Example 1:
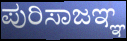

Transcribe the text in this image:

ಪುರಿಸಾಜಞ್ಞ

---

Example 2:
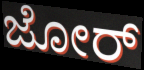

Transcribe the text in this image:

ಜೋರ್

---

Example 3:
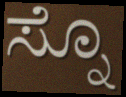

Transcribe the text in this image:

ಸ್ನೊ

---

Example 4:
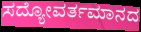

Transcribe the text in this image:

ಸದ್ಯೋವರ್ತಮಾನದ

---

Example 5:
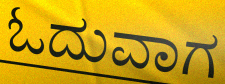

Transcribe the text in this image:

ಓದುವಾಗ